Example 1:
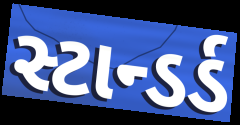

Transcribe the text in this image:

સ્ટાન્ડર્ડ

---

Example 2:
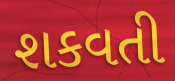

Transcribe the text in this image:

શકવતી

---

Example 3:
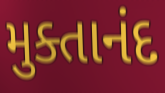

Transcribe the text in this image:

મુક્તાનંદ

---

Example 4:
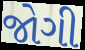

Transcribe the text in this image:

જોગી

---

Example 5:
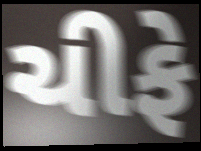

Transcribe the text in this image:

ચીફે